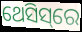
ଥେସିସ୍‌ରେ